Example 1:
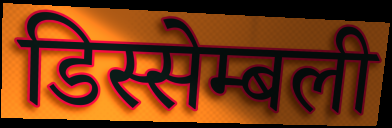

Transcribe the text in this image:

डिस्सेम्बली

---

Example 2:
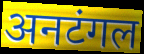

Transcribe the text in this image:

अनटंगल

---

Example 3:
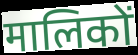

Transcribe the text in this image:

मालिकों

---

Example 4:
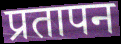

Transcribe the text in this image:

प्रतापन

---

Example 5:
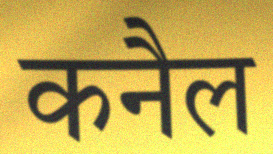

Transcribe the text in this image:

कनैल